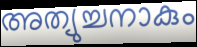
അത്യുച്ചനാകും